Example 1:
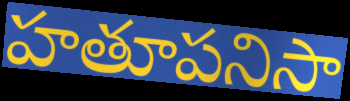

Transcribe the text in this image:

హతూపనిసా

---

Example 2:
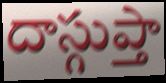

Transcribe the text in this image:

దాస్గుప్తా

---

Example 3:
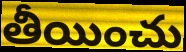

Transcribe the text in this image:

తీయించు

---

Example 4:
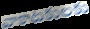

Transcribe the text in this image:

వాకాటకులకు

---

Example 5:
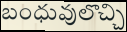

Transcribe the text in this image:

బంధువులొచ్చి